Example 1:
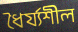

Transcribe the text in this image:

ধৈর্য্যশীল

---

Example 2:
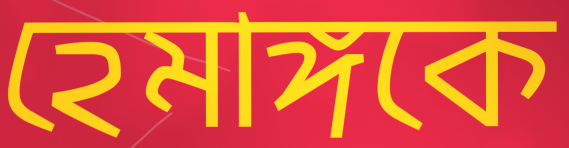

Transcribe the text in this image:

হেমাঙ্গকে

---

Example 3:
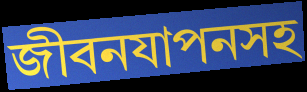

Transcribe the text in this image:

জীবনযাপনসহ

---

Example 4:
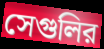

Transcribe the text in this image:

সেগুলির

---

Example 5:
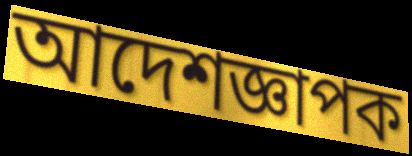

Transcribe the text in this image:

আদেশজ্ঞাপক